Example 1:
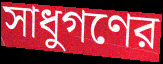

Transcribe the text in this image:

সাধুগণের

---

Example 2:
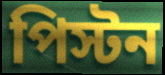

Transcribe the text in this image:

পিস্টন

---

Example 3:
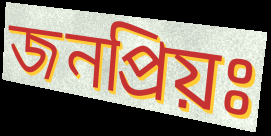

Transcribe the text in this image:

জনপ্রিয়ঃ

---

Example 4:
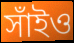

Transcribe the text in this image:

সাঁইও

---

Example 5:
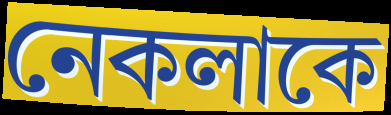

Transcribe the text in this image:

নেকলাকে